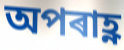
অপৰাহ্ণ